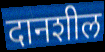
दानशील